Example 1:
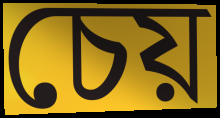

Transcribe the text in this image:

চেয়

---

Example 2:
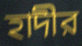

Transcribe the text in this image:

হাদীর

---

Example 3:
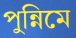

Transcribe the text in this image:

পুন্নিমে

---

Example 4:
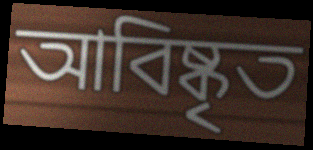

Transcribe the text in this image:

আবিষ্কৃত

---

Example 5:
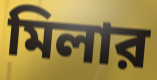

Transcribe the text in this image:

মিলার